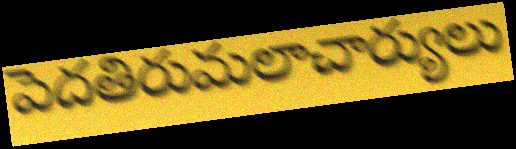
పెదతిరుమలాచార్యులు